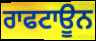
ਰਾਫਟਾਊਨ